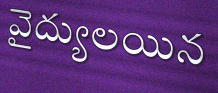
వైద్యులయిన